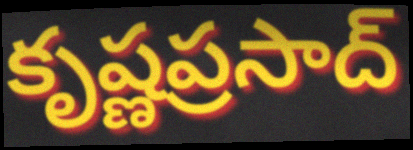
కృష్ణప్రసాద్